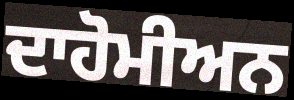
ਦਾਹੋਮੀਅਨ